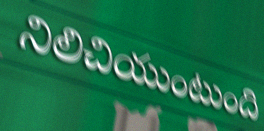
నిలిచియుంటుంది